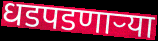
धडपडणाऱ्या